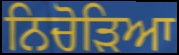
ਨਿਚੋੜਿਆ